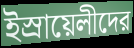
ইস্রায়েলীদের